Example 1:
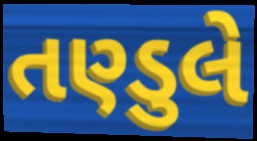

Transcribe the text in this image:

તણ્ડુલે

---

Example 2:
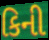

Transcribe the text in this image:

કિની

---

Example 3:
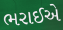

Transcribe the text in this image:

ભરાઈએ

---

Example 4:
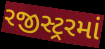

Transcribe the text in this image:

રજીસ્ટ્રરમાં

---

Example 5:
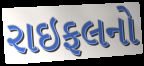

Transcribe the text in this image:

રાઇફલનો